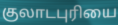
குலாடபுரியை